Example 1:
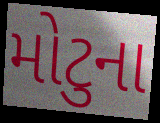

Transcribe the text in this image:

મોટુના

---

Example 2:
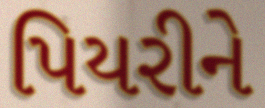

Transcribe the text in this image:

પિયરીને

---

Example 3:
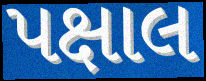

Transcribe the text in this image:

પક્ષાલ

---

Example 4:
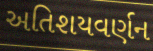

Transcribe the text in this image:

અતિશયવર્ણન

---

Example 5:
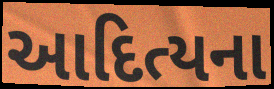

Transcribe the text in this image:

આદિત્યના